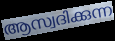
ആസ്വദിക്കുന്ന